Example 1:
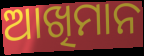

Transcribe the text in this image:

ଆଖିମାନ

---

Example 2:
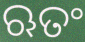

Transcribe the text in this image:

ଋତଂ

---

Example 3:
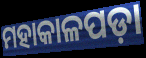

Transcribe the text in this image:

ମହାକାଳପଡ଼ା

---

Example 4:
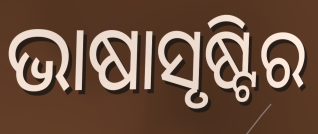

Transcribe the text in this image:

ଭାଷାସୃଷ୍ଟିର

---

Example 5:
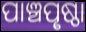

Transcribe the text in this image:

ପାଞ୍ଚପୃଷ୍ଠା